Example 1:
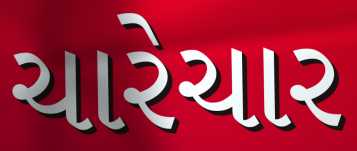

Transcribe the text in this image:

ચારેચાર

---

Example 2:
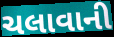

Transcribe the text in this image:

ચલાવાની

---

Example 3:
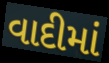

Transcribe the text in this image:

વાદીમાં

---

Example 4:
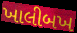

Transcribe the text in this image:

ખાલીબખ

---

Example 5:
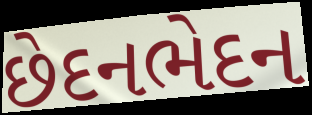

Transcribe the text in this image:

છેદનભેદન